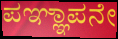
ಪಞ್ಞಾಪನೇ